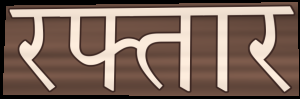
रफ्तार